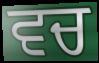
ਵਚ